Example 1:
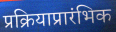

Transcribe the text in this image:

प्रक्रियाप्रारंभिक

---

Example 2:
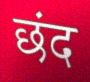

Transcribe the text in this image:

छंद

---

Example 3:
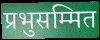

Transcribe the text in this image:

प्रभुसम्मित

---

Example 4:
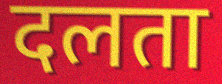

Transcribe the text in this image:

दलता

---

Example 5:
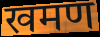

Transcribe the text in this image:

खमण